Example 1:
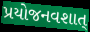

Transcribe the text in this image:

પ્રયોજનવશાત્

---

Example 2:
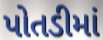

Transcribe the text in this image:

પોતડીમાં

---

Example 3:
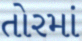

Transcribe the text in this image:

તોરમાં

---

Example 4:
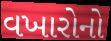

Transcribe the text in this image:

વખારોનો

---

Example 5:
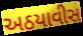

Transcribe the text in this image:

અઠયાવીસ